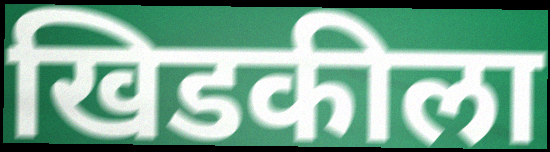
खिडकीला